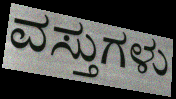
ವಸ್ತುಗಳು